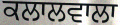
ਕਲਾਲਵਾਲਾ